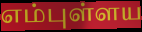
எம்புள்ளய